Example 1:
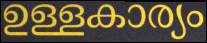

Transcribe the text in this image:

ഉള്ളകാര്യം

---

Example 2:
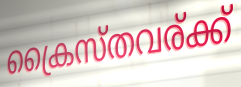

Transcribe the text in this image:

ക്രൈസ്തവര്ക്ക്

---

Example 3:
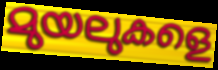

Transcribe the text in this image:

മുയലുകളെ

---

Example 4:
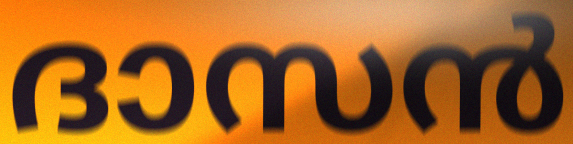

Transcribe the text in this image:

ദാസൻ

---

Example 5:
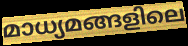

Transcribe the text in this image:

മാധ്യമങ്ങളിലെ